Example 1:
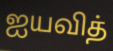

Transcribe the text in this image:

ஐயவித்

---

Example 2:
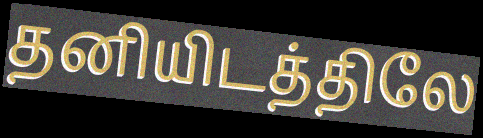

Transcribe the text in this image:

தனியிடத்திலே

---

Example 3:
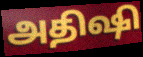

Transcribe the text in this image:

அதிஷி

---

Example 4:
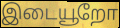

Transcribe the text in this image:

இடையூறோ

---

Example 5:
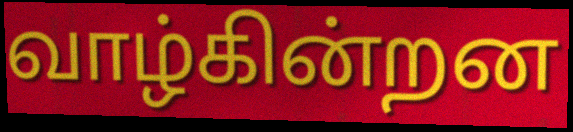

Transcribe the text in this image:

வாழ்கின்றன